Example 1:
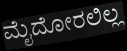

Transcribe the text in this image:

ಮೈದೋರಲಿಲ್ಲ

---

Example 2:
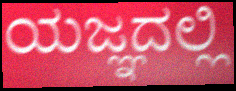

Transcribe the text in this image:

ಯಜ್ಞದಲ್ಲಿ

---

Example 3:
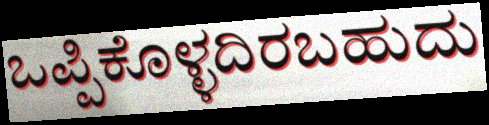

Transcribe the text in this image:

ಒಪ್ಪಿಕೊಳ್ಳದಿರಬಹುದು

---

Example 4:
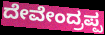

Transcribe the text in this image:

ದೇವೇಂದ್ರಪ್ಪ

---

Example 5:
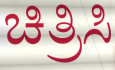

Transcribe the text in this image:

ಚಿತ್ರಿಸಿ